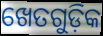
ଖେତଗୁଡ଼ିକ